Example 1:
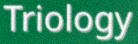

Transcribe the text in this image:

Triology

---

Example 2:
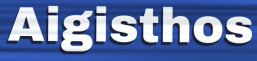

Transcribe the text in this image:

Aigisthos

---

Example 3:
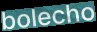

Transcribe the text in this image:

bolecho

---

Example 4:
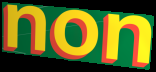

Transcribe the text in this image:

non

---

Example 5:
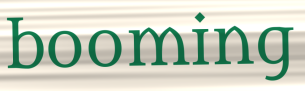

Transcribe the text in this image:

booming